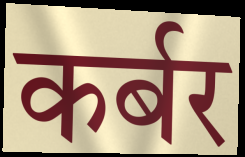
कर्बर